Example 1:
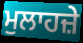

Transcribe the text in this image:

ਮੁਲਾਹਜ਼ੇ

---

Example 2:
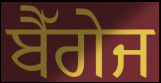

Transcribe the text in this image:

ਬੈੱਗੇਜ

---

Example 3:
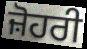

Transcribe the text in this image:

ਜ਼ੋਹਰੀ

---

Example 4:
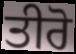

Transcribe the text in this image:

ਤੀਰੋ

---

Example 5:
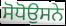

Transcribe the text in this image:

ਸੋਧੋਉਸਨੇ